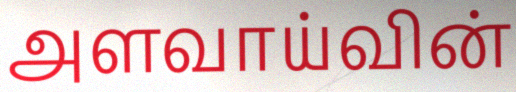
அளவாய்வின்